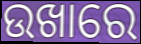
ଉଖାରେ